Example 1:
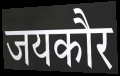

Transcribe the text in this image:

जयकौर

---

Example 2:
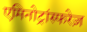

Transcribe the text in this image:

एमिनोट्रांस्फरेज़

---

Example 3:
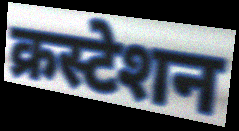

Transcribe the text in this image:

क्रस्टेशन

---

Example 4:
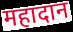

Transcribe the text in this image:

महादान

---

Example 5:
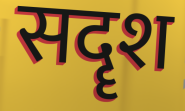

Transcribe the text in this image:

सदॄश